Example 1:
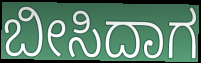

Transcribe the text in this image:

ಬೀಸಿದಾಗ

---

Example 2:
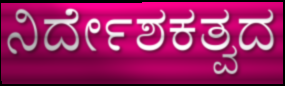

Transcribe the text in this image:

ನಿರ್ದೇಶಕತ್ವದ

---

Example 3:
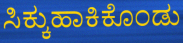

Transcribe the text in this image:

ಸಿಕ್ಕುಹಾಕಿಕೊಂಡು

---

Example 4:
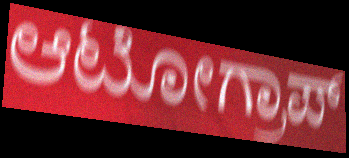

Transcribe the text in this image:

ಆಟೋಗ್ರಾಪ್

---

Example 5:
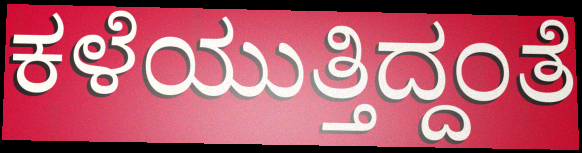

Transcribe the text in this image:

ಕಳೆಯುತ್ತಿದ್ದಂತೆ